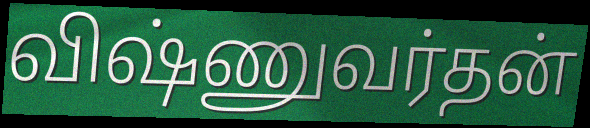
விஷ்ணுவர்தன்